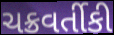
ચક્રવર્તીકી